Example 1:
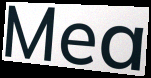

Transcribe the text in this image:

Mea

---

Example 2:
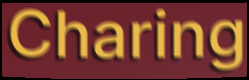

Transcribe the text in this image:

Charing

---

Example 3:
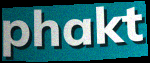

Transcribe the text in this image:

phakt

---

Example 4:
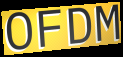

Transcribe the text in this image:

OFDM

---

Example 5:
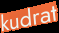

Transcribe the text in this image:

kudrat